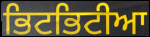
ਭਿਟਭਿਟੀਆ